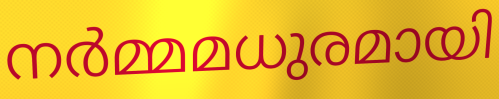
നർമ്മമധുരമായി